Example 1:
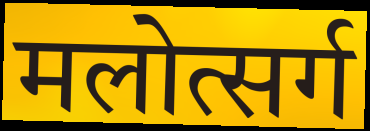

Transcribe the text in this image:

मलोत्सर्ग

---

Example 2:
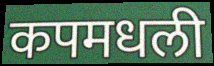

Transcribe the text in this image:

कपमधली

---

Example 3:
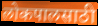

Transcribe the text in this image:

लोकपालसाठी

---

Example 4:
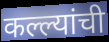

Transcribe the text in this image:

कल्ल्यांची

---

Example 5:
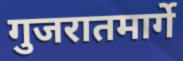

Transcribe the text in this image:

गुजरातमार्गे